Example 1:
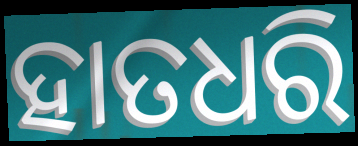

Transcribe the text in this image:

ହାତଧରି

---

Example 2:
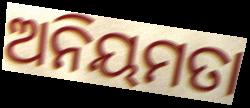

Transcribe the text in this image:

ଅନିୟମତା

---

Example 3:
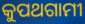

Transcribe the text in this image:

କୁପଥଗାମୀ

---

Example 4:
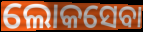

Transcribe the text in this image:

ଲୋକସେବା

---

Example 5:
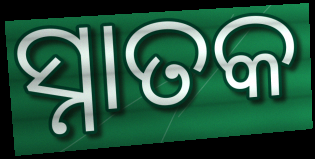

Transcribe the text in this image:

ସ୍ନାତକ